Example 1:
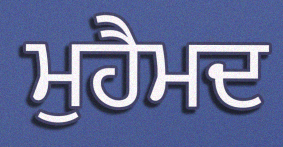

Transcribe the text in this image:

ਮੁਹੈਮਦ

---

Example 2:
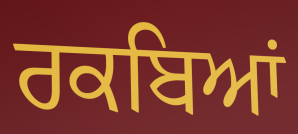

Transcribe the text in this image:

ਰਕਬਿਆਂ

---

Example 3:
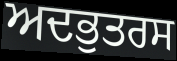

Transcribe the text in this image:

ਅਦਭੁਤਰਸ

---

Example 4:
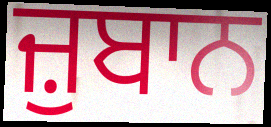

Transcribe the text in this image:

ਜ਼ੁਬਾਨ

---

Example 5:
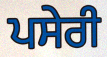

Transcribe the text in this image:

ਪਸੇਰੀ